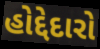
હોદ્દેદારો